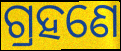
ଗ୍ରହଣେ